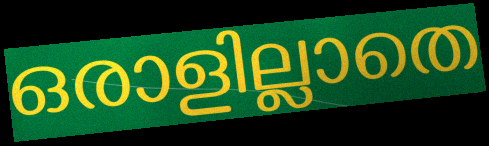
ഒരാളില്ലാതെ